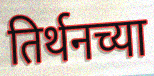
तिर्थनच्या